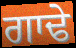
ਗਾਢੇ